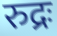
रुद्रः